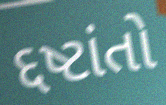
દ્દષ્ટાંતો